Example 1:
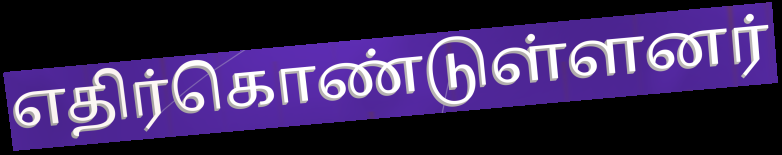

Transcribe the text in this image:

எதிர்கொண்டுள்ளனர்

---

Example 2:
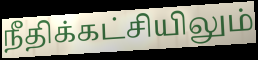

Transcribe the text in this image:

நீதிக்கட்சியிலும்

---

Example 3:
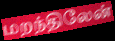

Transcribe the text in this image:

மறந்திலேன்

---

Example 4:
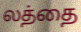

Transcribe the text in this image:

லத்தை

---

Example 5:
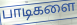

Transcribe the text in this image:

பாடிகளை